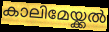
കാലിമേയ്ക്കൽ